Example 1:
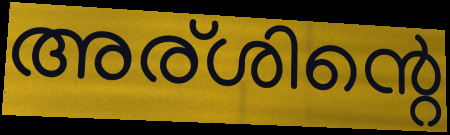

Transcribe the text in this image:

അര്ശിന്റെ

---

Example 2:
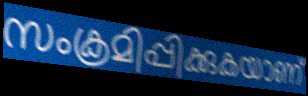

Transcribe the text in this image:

സംക്രമിപ്പിക്കുകയാണ്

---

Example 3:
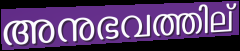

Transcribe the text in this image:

അനുഭവത്തില്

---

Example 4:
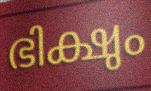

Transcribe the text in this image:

ഭിക്ഷും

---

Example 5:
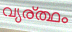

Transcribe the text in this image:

വ്യര്ത്ഥം